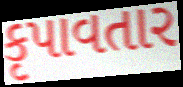
કૃપાવતાર